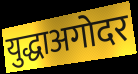
युद्धाअगोदर